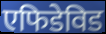
एफिडेविड